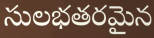
సులభతరమైన